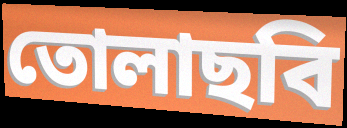
তোলাছবি